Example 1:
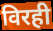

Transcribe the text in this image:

विरही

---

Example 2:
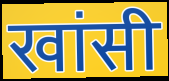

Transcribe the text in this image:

खांसी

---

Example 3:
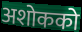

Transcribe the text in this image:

अशोकको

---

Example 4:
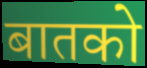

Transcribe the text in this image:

बातको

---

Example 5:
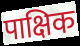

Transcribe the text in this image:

पाक्षिक